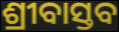
ଶ୍ରୀବାସ୍ତବ